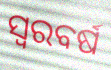
ସ୍ଵରବର୍ଷ